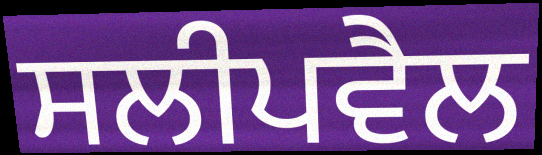
ਸਲੀਪਵੈਲ